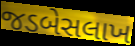
જડબેસલાખ